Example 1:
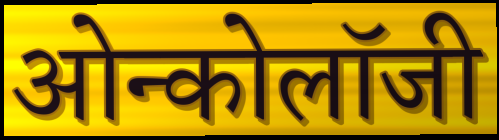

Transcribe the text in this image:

ओन्कोलॉजी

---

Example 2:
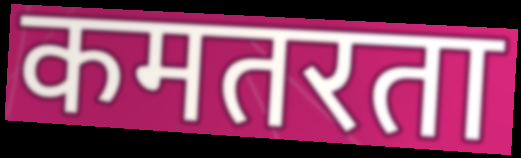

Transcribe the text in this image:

कमतरता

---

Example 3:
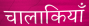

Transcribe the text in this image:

चालाकियाँ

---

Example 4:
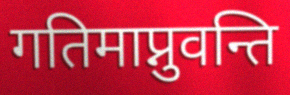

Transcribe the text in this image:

गतिमाप्नुवन्ति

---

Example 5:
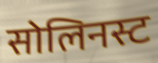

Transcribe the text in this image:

सोलिनस्ट